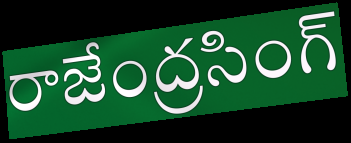
రాజేంద్రసింగ్